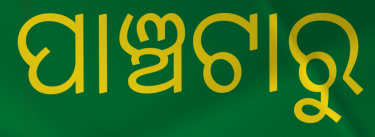
ପାଞ୍ଚଟାରୁ